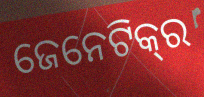
ଜେନେଟିକ୍‌ର